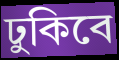
ঢুকিবে